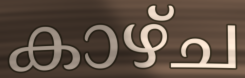
കാഴ്ച